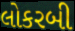
લોકરબી